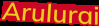
Arulurai